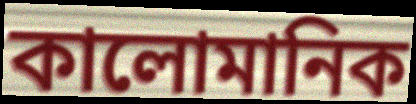
কালোমানিক